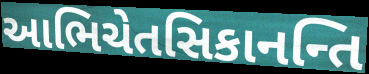
આભિચેતસિકાનન્તિ